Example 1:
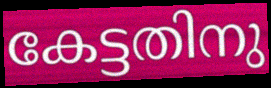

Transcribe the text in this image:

കേട്ടതിനു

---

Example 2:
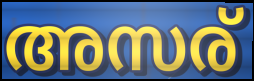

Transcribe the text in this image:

അസര്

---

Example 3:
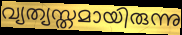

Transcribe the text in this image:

വ്യത്യസ്തമായിരുന്നു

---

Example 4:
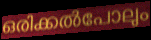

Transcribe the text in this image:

ഒരിക്കൽപോലും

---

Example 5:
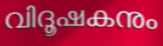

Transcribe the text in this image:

വിദൂഷകനും